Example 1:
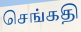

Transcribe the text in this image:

செங்கதி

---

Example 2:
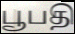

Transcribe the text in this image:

பூபதி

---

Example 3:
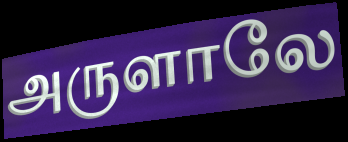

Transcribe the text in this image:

அருளாலே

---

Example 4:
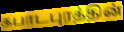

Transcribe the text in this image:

கபாடபுரத்தின்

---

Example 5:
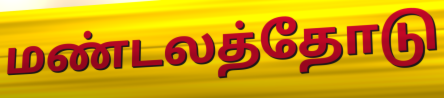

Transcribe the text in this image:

மண்டலத்தோடு